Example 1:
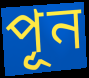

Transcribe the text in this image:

পূন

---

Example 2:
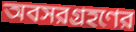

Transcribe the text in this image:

অবসরগ্রহণের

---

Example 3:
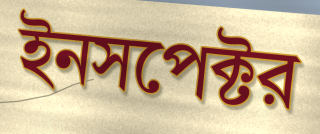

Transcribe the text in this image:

ইনসপেক্টর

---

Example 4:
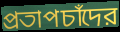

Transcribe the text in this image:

প্রতাপচাঁদের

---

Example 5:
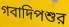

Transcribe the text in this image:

গবাদিপশুর